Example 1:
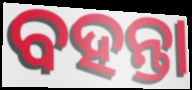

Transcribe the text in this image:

ବହନ୍ତା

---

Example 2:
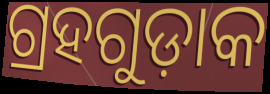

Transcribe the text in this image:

ଗ୍ରହଗୁଡ଼ାକ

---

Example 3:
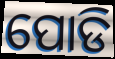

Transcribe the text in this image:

ପୋଡି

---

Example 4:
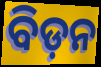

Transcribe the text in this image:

ବିଡ଼ନ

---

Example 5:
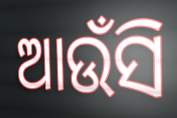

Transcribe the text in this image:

ଆଉଁସି